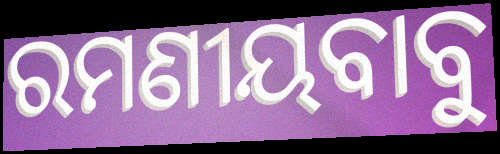
ରମଣୀୟବାବୁ